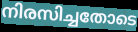
നിരസിച്ചതോടെ